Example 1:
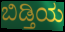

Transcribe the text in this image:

ಬಿಡ್ತಿಯ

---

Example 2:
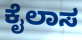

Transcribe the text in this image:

ಕೈಲಾಸ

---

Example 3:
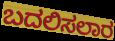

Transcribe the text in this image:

ಬದಲಿಸಲಾರ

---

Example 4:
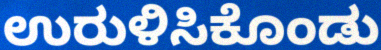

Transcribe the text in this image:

ಉರುಳಿಸಿಕೊಂಡು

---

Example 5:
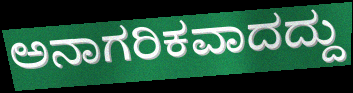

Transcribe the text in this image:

ಅನಾಗರಿಕವಾದದ್ದು